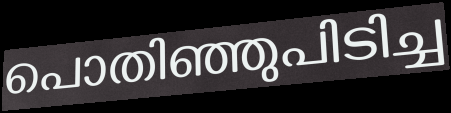
പൊതിഞ്ഞുപിടിച്ച